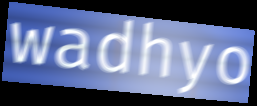
wadhyo